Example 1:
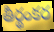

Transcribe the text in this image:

తీర్థంకర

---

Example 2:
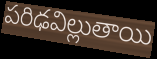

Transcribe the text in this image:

పరిఢవిల్లుతాయి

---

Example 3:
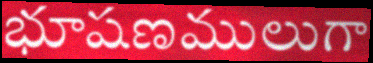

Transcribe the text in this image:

భూషణములుగా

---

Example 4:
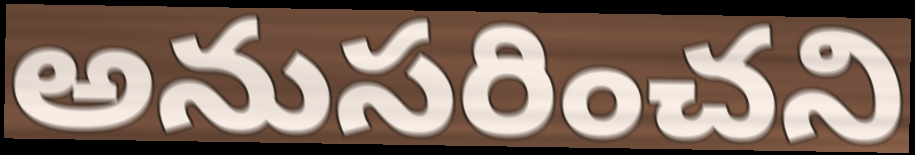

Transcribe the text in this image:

అనుసరించని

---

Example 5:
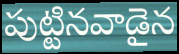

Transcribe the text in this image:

పుట్టినవాడైన